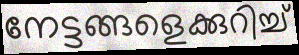
നേട്ടങ്ങളെക്കുറിച്ച്